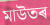
মাউতৰ